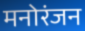
मनोरंजन